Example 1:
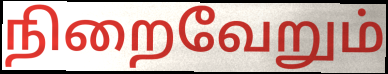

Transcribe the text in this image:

நிறைவேறும்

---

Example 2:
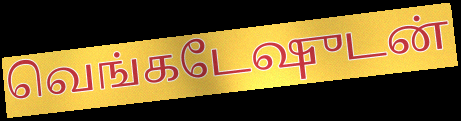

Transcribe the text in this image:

வெங்கடேஷுடன்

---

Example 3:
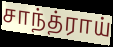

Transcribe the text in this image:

சாந்த்ராய்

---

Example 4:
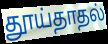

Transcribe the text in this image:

தூய்தாதல்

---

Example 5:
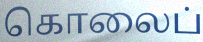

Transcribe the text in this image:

கொலைப்